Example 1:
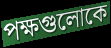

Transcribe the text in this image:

পক্ষগুলোকে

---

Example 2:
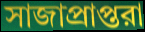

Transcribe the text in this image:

সাজাপ্রাপ্তরা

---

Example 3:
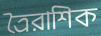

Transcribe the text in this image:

ত্রৈরাশিক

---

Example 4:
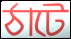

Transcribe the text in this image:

ঠাটে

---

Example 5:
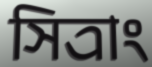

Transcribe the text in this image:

সিত্রাং